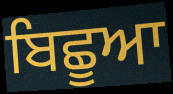
ਬਿਛੂਆ